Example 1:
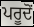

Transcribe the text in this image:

ਪਰੂਦੋਂ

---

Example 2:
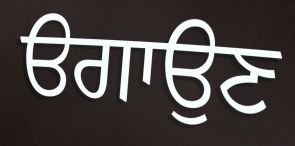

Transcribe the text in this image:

ੳਗਾਉਣ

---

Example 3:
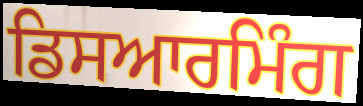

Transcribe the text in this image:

ਡਿਸਆਰਮਿੰਗ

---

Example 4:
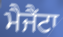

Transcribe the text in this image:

ਮੈਜੈਂਟਾ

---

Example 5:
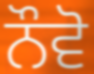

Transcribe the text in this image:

ਨੌਵੋ